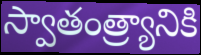
స్వాతంత్ర్యానికి